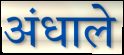
अंधाले